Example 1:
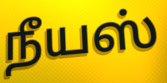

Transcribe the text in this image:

நீயஸ்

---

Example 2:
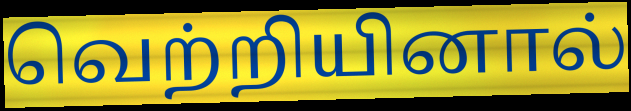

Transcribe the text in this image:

வெற்றியினால்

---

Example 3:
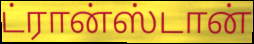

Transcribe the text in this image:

ட்ரான்ஸ்டான்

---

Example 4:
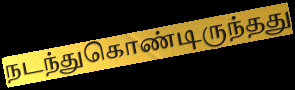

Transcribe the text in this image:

நடந்துகொண்டிருந்தது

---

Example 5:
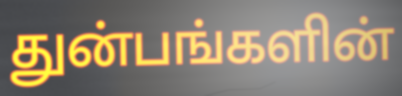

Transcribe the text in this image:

துன்பங்களின்